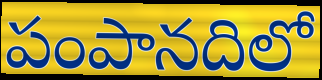
పంపానదిలో